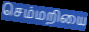
செம்மறியை